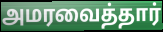
அமரவைத்தார்